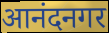
आनंदनगर